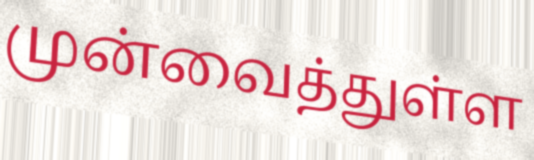
முன்வைத்துள்ள